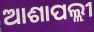
ଆଶାପଲ୍ଲୀ